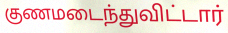
குணமடைந்துவிட்டார்